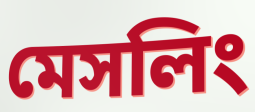
মেসলিং